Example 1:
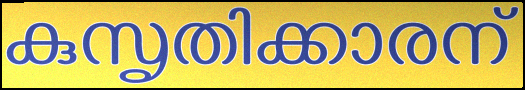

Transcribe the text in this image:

കുസൃതിക്കാരന്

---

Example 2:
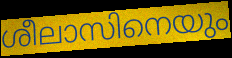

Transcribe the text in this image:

ശീലാസിനെയും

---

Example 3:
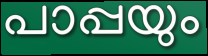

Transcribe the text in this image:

പാപ്പയും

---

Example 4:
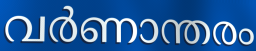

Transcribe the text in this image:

വർണാന്തരം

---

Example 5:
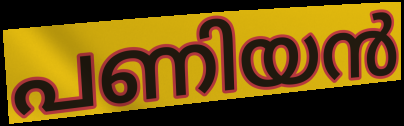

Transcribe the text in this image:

പണിയൻ